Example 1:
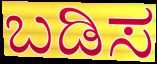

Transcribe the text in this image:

ಬಡಿಸ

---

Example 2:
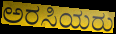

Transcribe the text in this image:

ಅರಸಿಯರು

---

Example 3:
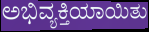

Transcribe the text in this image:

ಅಭಿವ್ಯಕ್ತಿಯಾಯಿತು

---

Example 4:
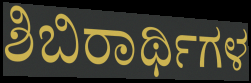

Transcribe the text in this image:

ಶಿಬಿರಾರ್ಥಿಗಳ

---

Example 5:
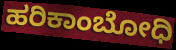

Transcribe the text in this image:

ಹರಿಕಾಂಬೋಧಿ